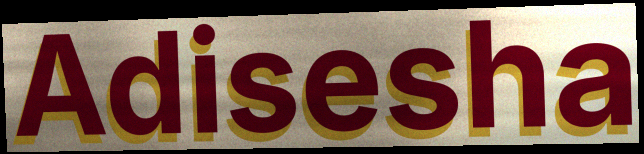
Adisesha